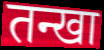
तन्खा